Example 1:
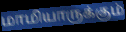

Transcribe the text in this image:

மாமியாருக்கும்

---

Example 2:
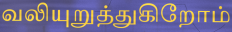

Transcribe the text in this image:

வலியுறுத்துகிறோம்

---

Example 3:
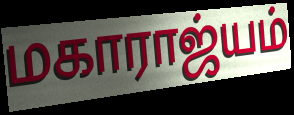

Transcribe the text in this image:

மகாராஜ்யம்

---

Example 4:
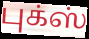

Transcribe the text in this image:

புக்ஸ்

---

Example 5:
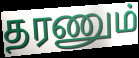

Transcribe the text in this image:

தரணும்